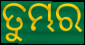
ତୁମ୍ଭର